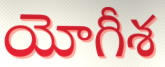
యోగీశ